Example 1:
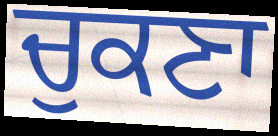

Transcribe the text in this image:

ਚੁਕਣਾ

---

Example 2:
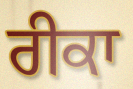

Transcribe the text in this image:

ਰੀਕਾ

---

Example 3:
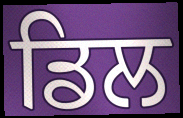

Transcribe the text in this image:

ਡਿਲ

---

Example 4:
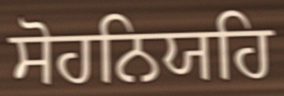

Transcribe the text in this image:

ਸੋਹਨਿਯਹਿ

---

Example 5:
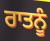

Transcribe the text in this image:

ਰਾਤਨੂੰ